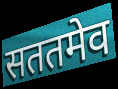
सततमेव